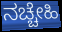
ನಚ್ಚೇಹಿ